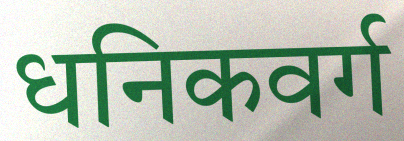
धनिकवर्ग